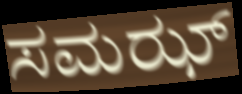
ಸಮಝ್